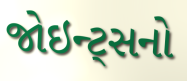
જોઇન્ટ્સનો